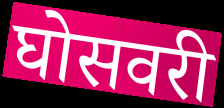
घोसवरी